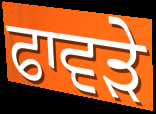
ਫਾਵੜੇ